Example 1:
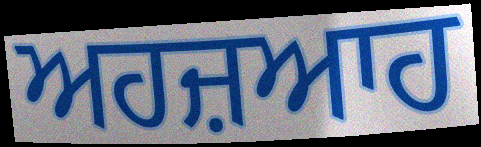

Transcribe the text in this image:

ਅਹਜ਼ਆਹ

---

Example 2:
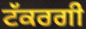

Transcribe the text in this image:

ਟੱਕਰਗੀ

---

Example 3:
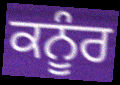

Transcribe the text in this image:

ਕਨੂੰਰ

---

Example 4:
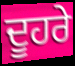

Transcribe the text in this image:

ਦੂਹਰੇ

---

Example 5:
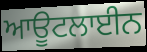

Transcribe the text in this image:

ਆਊਟਲਾਈਨ